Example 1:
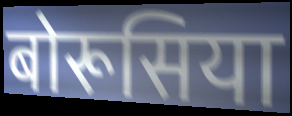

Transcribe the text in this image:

बोरूसिया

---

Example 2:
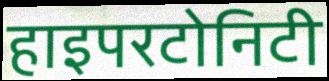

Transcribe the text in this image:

हाइपरटोनिटी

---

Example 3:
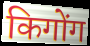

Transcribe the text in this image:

किगोंग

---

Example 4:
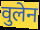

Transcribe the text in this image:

वुलेन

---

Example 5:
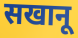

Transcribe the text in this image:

सखानू